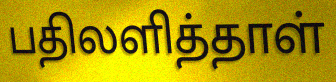
பதிலளித்தாள்